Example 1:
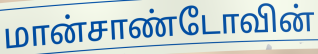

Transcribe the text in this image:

மான்சாண்டோவின்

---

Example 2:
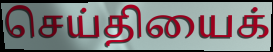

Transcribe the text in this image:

செய்தியைக்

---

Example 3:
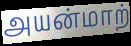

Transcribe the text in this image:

அயன்மாற்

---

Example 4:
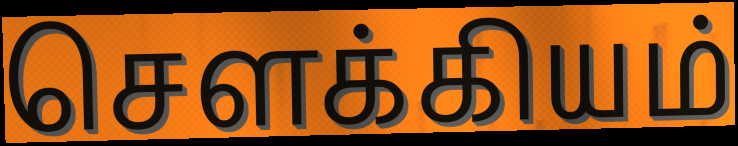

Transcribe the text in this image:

சௌக்கியம்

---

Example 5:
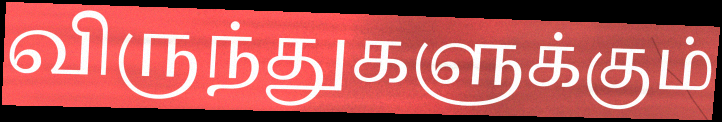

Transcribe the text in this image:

விருந்துகளுக்கும்